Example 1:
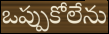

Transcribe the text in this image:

ఒప్పుకోలేను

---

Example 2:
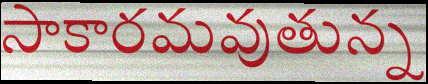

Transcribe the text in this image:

సాకారమవుతున్న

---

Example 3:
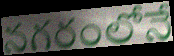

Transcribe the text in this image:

నగరంలోనే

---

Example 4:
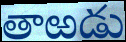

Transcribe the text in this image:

తాఱడు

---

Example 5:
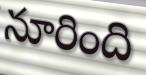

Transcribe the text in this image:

నూరింది